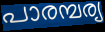
പാരമ്പര്യ